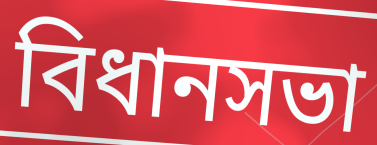
বিধানসভা